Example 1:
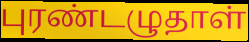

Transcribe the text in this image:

புரண்டழுதாள்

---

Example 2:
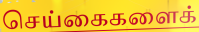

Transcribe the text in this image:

செய்கைகளைக்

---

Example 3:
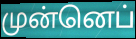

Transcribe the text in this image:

முன்னெப்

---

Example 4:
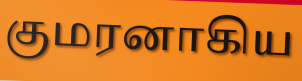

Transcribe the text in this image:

குமரனாகிய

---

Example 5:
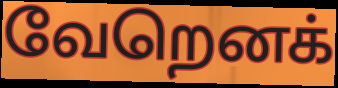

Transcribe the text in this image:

வேறெனக்